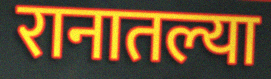
रानातल्या